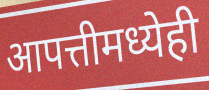
आपत्तीमध्येही